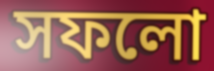
সফলো